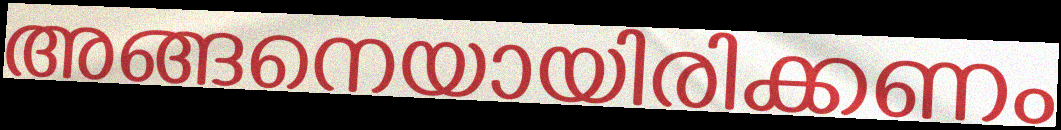
അങ്ങനെയായിരിക്കണം